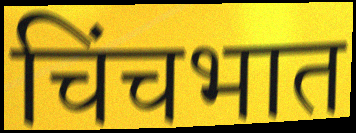
चिंचभात